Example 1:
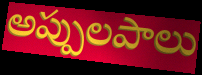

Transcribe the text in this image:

అప్పులపాలు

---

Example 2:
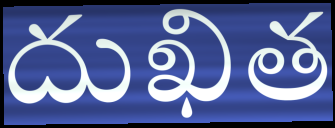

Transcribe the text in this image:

దుఖిత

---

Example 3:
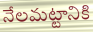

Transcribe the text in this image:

నేలమట్టానికి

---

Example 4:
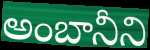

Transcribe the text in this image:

అంబానీని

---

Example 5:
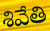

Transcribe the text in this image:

శివేతి